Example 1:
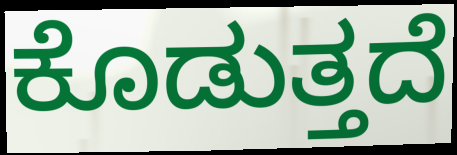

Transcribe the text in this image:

ಕೊಡುತ್ತದೆ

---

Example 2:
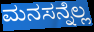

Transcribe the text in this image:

ಮನಸನ್ನೆಲ್ಲ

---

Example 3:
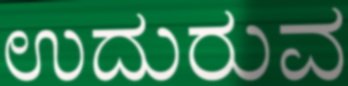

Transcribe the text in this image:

ಉದುರುವ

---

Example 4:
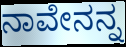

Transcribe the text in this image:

ನಾವೇನನ್ನ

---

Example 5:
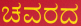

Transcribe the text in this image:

ಚವರದ